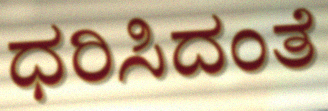
ಧರಿಸಿದಂತೆ